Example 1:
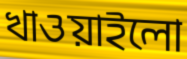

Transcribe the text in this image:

খাওয়াইলো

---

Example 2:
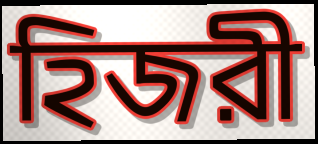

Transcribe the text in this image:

হিজরী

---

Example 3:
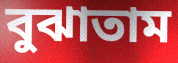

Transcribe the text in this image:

বুঝাতাম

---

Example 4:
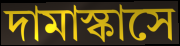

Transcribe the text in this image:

দামাস্কাসে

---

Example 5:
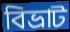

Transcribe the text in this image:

বিভ্রাট